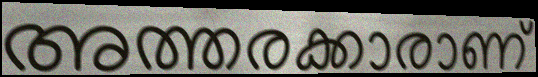
അത്തരക്കാരാണ്